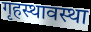
गृहस्थावस्था